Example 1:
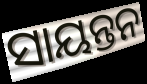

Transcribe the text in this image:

ସାୟନ୍ତନ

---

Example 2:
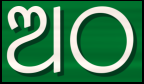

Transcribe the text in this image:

ଅଠ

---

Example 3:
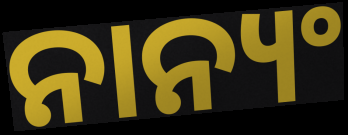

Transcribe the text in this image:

ନାନ୍ୟଂ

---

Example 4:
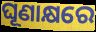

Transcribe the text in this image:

ଘୂଣାକ୍ଷରେ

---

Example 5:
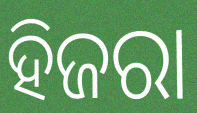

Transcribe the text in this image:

ହିଜରା